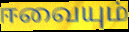
ஈவையும்